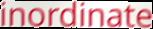
inordinate